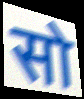
सो